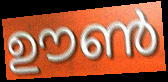
ഊൺ